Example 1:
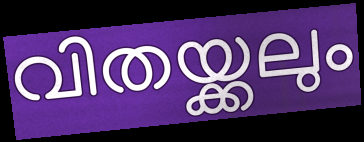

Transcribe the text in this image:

വിതയ്ക്കലും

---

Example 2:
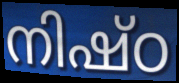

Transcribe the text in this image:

നിഷ്ഠ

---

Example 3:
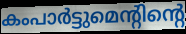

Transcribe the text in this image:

കംപാർട്ടുമെന്റിന്റെ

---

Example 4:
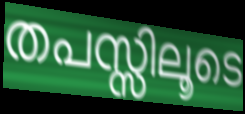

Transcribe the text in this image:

തപസ്സിലൂടെ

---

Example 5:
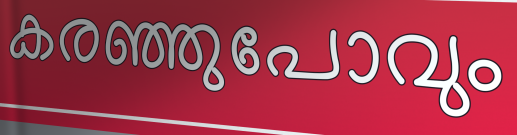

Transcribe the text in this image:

കരഞ്ഞുപോവും